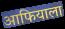
आफियाला